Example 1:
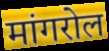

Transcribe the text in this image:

मांगरोल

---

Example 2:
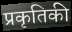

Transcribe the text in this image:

प्रकृतिकी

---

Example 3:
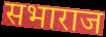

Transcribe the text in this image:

सभाराज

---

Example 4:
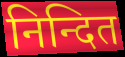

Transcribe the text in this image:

निन्दित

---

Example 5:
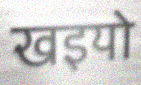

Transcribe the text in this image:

खइयो